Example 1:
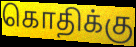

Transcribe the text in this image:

கொதிக்கு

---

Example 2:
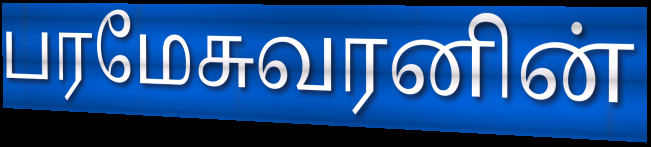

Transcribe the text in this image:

பரமேசுவரனின்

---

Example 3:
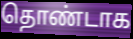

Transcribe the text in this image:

தொண்டாக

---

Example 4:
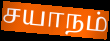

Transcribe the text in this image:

சயாநம்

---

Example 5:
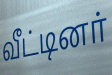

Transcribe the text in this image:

வீட்டினர்